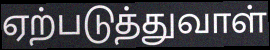
ஏற்படுத்துவாள்